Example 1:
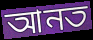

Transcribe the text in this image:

আনত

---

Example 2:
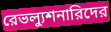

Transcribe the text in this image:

রেভল্যুশনারিদের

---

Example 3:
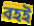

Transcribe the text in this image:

বহই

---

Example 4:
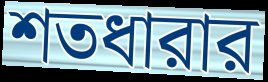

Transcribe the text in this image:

শতধারার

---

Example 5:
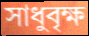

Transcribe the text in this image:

সাধুবৃক্ষ